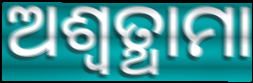
ଅଶ୍ଵତ୍ଥାମା